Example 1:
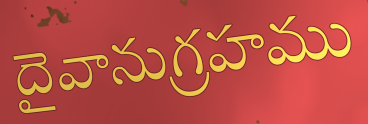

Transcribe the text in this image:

దైవానుగ్రహము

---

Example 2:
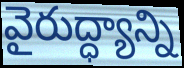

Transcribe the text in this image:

వైరుద్ధ్యాన్ని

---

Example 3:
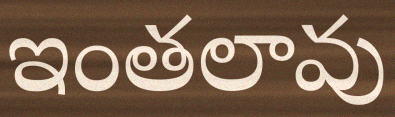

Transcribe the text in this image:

ఇంతలావు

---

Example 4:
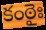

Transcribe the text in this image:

కంఠైః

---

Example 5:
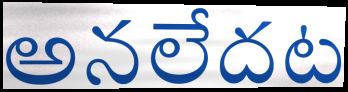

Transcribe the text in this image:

అనలేదట